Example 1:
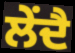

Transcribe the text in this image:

ਲੇਂਦੈ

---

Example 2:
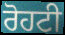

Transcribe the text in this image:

ਰੋਹਟੀ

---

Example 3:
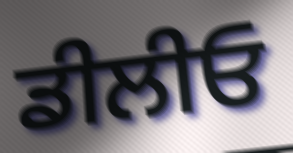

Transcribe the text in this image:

ਡੀਲੀਓ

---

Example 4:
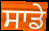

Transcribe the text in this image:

ਸਾਡੇ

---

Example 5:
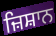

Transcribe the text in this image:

ਜ਼ਿਸ਼ਾਨ